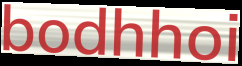
bodhhoi